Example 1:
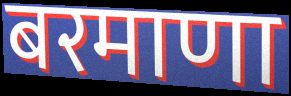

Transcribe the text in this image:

बरमाणा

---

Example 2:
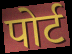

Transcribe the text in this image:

पोर्ट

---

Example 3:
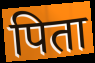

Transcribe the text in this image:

पिता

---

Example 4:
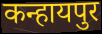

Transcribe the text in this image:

कन्हायपुर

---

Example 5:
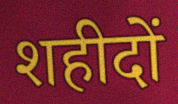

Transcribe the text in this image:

शहीदों